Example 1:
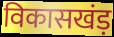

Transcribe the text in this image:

विकासखंड़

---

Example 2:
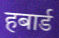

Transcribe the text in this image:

हबार्ड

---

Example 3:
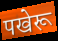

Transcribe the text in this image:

पखेरू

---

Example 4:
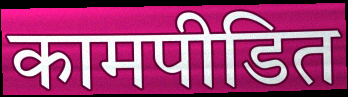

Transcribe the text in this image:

कामपीडित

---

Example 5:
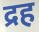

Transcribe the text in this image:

द्रह